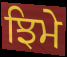
ਝਿਮੇ